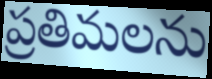
ప్రతిమలను